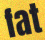
fat